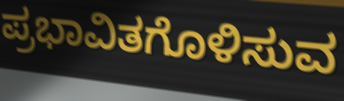
ಪ್ರಭಾವಿತಗೊಳಿಸುವ